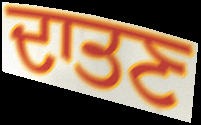
ਦਾਤਣ